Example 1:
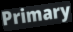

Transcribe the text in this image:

Primary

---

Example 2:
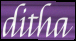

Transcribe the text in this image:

ditha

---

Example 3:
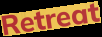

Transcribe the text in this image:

Retreat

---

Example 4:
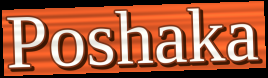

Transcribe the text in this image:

Poshaka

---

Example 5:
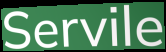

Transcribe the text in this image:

Servile